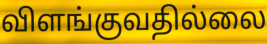
விளங்குவதில்லை